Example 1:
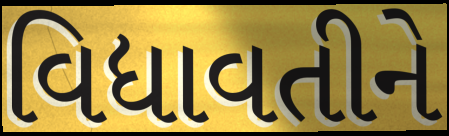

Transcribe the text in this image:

વિદ્યાવતીને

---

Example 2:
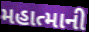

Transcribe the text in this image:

મહાત્માની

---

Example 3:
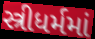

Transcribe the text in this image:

સ્ત્રીધર્મમાં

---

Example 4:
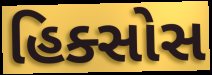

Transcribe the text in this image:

હિક્સોસ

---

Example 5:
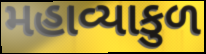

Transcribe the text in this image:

મહાવ્યાકુળ